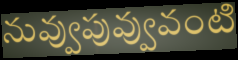
నువ్వుపువ్వువంటి